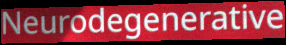
Neurodegenerative